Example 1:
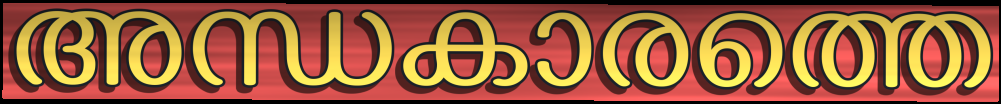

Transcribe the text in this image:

അന്ധകാരത്തെ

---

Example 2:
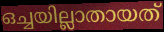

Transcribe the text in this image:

ഒച്ചയില്ലാതായത്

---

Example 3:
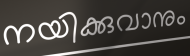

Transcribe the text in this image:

നയിക്കുവാനും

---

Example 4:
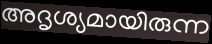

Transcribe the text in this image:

അദൃശ്യമായിരുന്ന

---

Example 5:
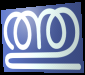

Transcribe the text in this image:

ത്തു